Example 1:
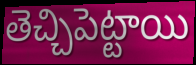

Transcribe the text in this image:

తెచ్చిపెట్టాయి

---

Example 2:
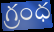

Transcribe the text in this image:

గ్రంధ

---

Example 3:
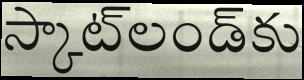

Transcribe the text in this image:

స్కాట్‌లండ్‌కు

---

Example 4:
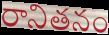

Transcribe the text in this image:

రానితనం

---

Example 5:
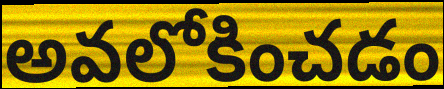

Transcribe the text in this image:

అవలోకించడం